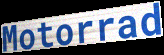
Motorrad